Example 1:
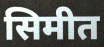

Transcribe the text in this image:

सिमीत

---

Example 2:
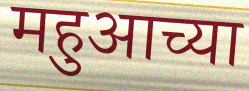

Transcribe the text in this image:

महुआच्या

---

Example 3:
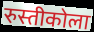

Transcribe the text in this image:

रुस्तीकोला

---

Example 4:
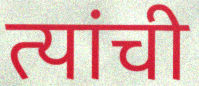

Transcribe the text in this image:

त्‍यांची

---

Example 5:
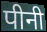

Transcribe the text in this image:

पीनी